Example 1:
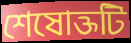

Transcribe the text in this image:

শেষোক্তটি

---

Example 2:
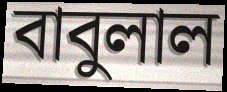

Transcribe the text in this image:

বাবুলাল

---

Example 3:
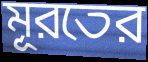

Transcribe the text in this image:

মূরতের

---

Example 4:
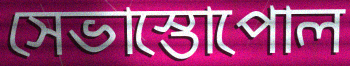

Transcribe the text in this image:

সেভাস্তোপোল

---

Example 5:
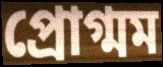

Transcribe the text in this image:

প্রোগ্মম